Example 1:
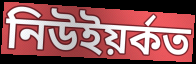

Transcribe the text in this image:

নিউইয়ৰ্কত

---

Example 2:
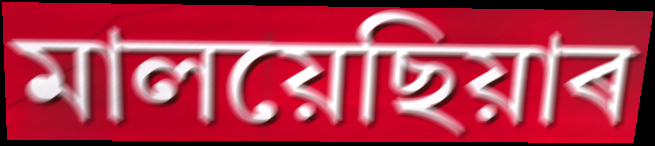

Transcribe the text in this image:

মালয়েছিয়াৰ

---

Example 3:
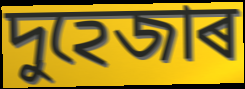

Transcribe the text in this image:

দুহেজাৰ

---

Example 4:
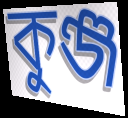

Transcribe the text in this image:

কুঞ্জ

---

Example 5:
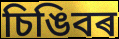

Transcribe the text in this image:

চিঙিবৰ